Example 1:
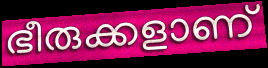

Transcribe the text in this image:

ഭീരുക്കളാണ്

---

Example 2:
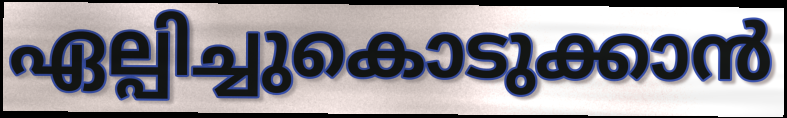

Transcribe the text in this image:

ഏല്പിച്ചുകൊടുക്കാൻ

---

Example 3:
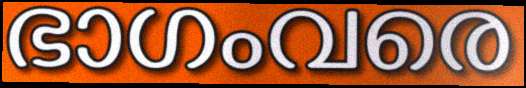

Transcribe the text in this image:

ഭാഗംവരെ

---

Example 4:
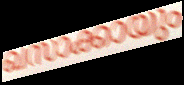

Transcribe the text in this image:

ഖസാക്കായും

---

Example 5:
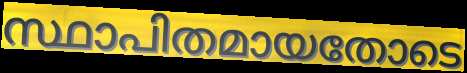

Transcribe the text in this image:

സ്ഥാപിതമായതോടെ